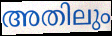
അതിലും